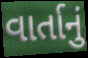
વાર્તાનું